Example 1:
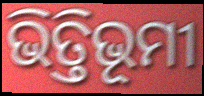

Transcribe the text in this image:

ଭିତ୍ତିଭୂମୀ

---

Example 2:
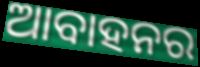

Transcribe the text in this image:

ଆବାହନର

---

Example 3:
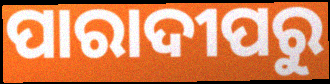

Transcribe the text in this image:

ପାରାଦୀପରୁ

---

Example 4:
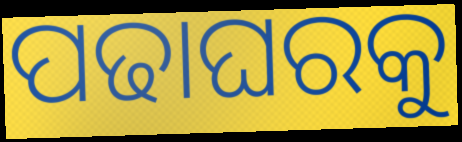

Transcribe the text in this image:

ପଢାଘରକୁ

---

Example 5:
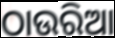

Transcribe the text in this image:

ଠାଉରିଆ